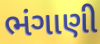
ભંગાણી